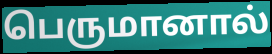
பெருமானால்